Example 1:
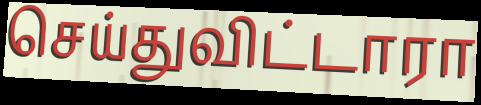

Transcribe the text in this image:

செய்துவிட்டாரா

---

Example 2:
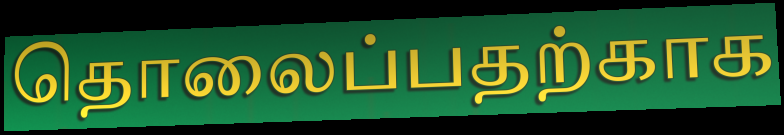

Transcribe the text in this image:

தொலைப்பதற்காக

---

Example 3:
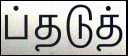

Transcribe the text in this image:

ப்தடுத்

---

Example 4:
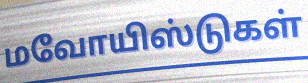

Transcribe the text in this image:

மவோயிஸ்டுகள்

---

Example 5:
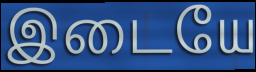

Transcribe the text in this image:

இடையே